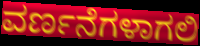
ವರ್ಣನೆಗಳಾಗಲಿ